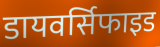
डायवर्सिफाइड